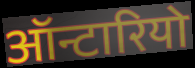
ऑन्टारियो